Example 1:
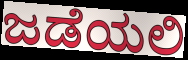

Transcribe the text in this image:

ಜಡೆಯಲಿ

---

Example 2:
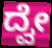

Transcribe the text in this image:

ದ್ವೇ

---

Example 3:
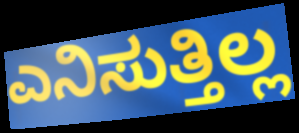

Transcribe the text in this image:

ಎನಿಸುತ್ತಿಲ್ಲ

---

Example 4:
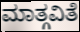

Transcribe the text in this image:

ಮಾತ್ಗವಿತೆ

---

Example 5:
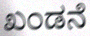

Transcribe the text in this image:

ಖಂಡನೆ